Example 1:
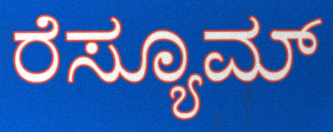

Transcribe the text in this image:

ರೆಸ್ಯೂಮ್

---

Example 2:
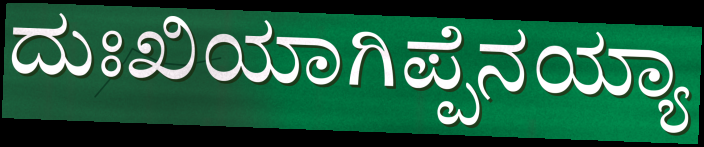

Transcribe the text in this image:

ದುಃಖಿಯಾಗಿಪ್ಪೆನಯ್ಯಾ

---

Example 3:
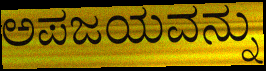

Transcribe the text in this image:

ಅಪಜಯವನ್ನು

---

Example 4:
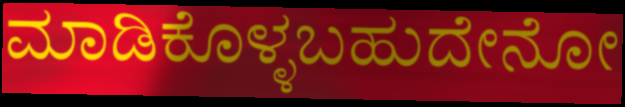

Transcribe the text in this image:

ಮಾಡಿಕೊಳ್ಳಬಹುದೇನೋ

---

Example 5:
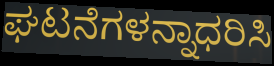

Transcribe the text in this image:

ಘಟನೆಗಳನ್ನಾಧರಿಸಿ